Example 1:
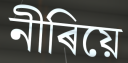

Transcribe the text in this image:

নীৰিয়ে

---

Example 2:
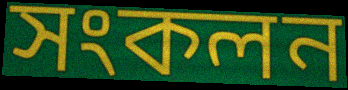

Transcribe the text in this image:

সংকলন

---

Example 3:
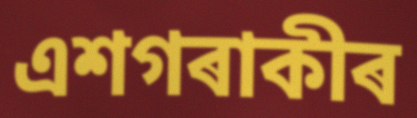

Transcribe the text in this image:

এশগৰাকীৰ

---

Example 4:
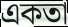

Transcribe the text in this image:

একতা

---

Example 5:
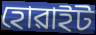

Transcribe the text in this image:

হোৱাইট